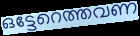
ഒട്ടേറെത്തവണ